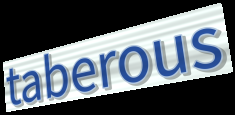
taberous